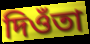
দিওঁতা